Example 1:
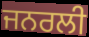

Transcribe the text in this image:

ਜਨਰਲੀ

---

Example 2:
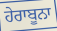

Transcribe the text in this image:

ਹੇਰਾਬੂਨਾ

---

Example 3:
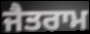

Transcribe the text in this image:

ਜੈਤਰਾਮ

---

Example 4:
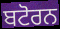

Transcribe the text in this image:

ਬਟੋਰਨ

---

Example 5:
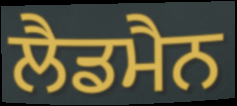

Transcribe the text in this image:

ਲੈਡਮੈਨ